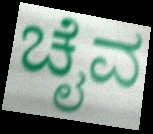
ಚೈವ